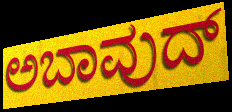
ಅಬಾವುದ್